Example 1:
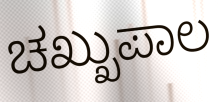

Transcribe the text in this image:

ಚಖ್ಖುಪಾಲ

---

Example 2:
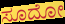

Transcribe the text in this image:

ಸೂದೋ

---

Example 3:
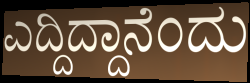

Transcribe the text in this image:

ಎದ್ದಿದ್ದಾನೆಂದು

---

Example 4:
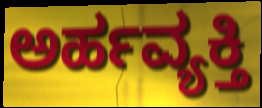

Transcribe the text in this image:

ಅರ್ಹವ್ಯಕ್ತಿ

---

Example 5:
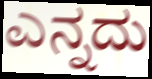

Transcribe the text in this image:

ಎನ್ನದು